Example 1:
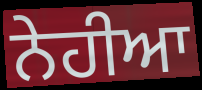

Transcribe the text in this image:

ਨੇਹੀਆ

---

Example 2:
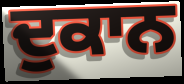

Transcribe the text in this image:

ਦੁਕਾਨ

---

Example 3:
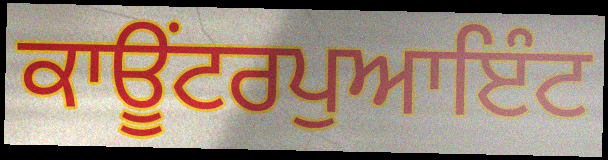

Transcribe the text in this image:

ਕਾਊਂਟਰਪੁਆਇੰਟ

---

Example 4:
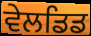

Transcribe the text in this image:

ਵੇਲਡਿਡ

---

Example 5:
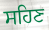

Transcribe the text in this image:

ਸਹਿਣ